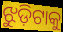
ଝୁଡ଼ିଟାକୁ